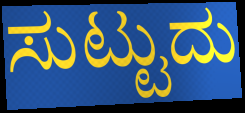
ಸುಟ್ಟುದು